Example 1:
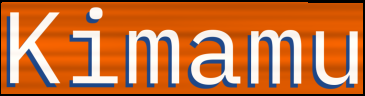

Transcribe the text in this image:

Kimamu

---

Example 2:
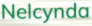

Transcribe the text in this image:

Nelcynda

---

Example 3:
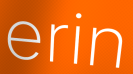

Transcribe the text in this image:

erin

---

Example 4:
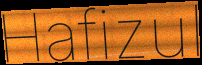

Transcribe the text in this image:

Hafizul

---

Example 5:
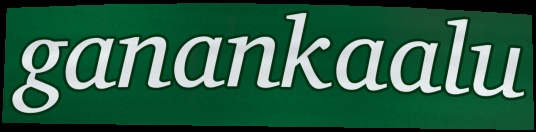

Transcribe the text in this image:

ganankaalu